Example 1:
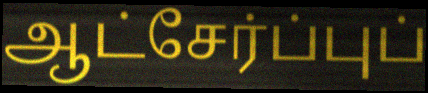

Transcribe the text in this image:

ஆட்சேர்ப்புப்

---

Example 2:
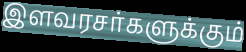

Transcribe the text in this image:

இளவரசர்களுக்கும்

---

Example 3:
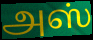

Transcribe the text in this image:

அஸ்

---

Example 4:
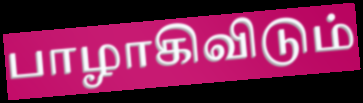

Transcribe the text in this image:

பாழாகிவிடும்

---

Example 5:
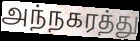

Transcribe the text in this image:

அந்நகரத்து